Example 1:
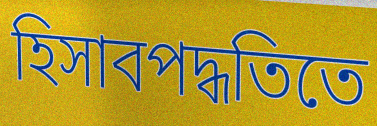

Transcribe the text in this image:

হিসাবপদ্ধতিতে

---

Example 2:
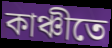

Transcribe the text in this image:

কাঞ্চীতে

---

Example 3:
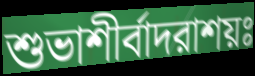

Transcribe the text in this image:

শুভাশীর্বাদরাশয়ঃ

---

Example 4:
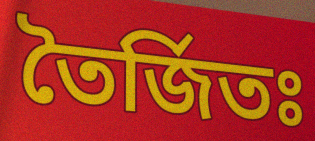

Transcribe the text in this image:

তৈর্জিতঃ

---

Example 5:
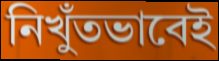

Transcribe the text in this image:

নিখুঁতভাবেই